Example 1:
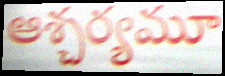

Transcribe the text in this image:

ఆశ్చర్యమూ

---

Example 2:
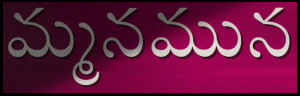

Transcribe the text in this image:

మ్మనమున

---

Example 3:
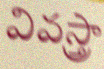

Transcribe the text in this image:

వివస్త్రా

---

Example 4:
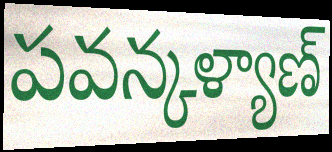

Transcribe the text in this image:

పవన్కళ్యాణ్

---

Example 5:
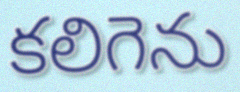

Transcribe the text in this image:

కలిగెను